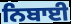
ਨਿਬਾਈ